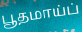
பூதமாய்ப்